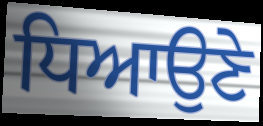
ਧਿਆਉਣੇ